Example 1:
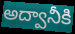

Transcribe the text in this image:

అద్వానీకి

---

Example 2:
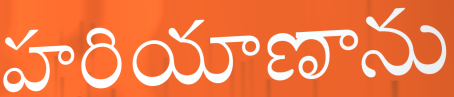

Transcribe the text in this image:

హరియాణాను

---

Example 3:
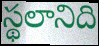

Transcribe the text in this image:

స్థలానిది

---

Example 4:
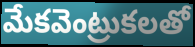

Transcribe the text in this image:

మేకవెంట్రుకలతో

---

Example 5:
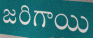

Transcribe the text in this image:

జరిగాయి